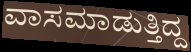
ವಾಸಮಾಡುತ್ತಿದ್ದ